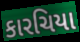
કારચિયા